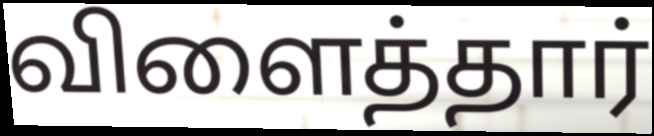
விளைத்தார்